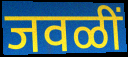
जवळीं